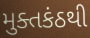
મુક્તકંઠથી